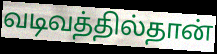
வடிவத்தில்தான்